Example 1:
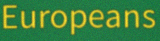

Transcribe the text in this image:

Europeans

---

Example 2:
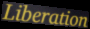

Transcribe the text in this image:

Liberation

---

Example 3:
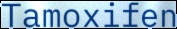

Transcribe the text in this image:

Tamoxifen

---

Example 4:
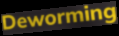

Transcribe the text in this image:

Deworming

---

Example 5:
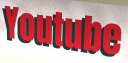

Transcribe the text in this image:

Youtube